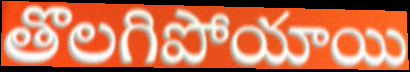
తొలగిపోయాయి